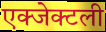
एक्जेक्टली